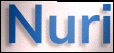
Nuri